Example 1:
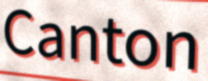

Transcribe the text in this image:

Canton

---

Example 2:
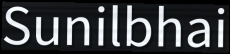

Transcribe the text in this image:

Sunilbhai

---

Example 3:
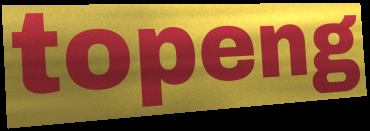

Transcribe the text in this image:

topeng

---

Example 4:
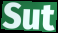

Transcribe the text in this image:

Sut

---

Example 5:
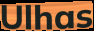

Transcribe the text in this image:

Ulhas